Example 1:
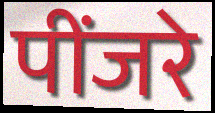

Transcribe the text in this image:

पींजरे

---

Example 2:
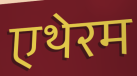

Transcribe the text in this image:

एथेरम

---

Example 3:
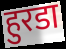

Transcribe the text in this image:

हुरडा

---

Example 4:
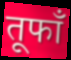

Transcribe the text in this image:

तूफाँ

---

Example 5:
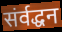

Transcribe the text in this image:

संर्वद्धन